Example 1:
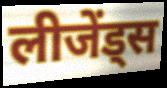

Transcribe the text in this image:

लीजेंड्स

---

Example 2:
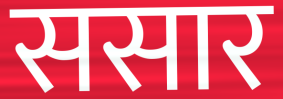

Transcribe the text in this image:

ससार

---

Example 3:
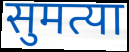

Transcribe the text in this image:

सुमत्या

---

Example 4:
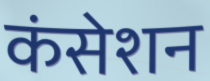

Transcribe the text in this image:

कंसेशन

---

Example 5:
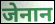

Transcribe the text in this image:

जेनान